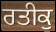
ਰਤੀਕੁ